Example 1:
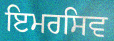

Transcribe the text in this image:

ਇਮਰਸਿਵ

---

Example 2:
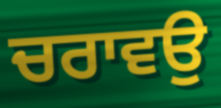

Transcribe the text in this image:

ਚਰਾਵਉ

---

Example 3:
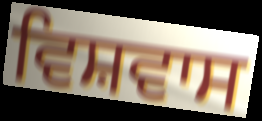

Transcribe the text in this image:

ਵਿਸ਼ਵਾਸ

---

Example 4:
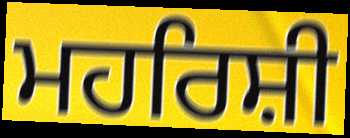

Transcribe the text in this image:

ਮਹਰਿਸ਼ੀ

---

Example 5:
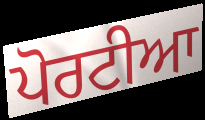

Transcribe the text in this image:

ਪੋਰਟੀਆ